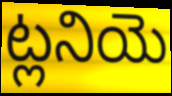
ట్లనియె